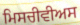
ਮਿਸਚੀਵੀਅਸ